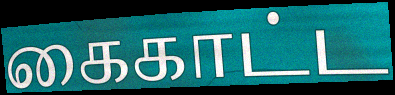
கைகாட்ட